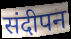
संदीपन